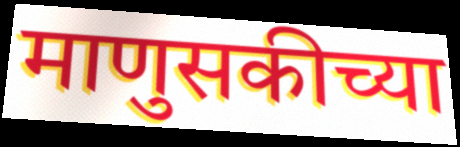
माणुसकीच्या